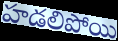
హడలిపోయి